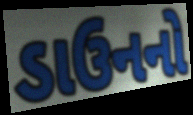
ડાઉનનો